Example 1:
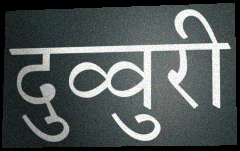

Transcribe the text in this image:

दुव्वुरी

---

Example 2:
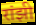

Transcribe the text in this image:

रांझी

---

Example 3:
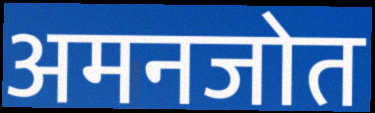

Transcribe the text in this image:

अमनजोत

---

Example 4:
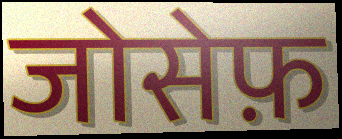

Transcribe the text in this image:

जोसेफ़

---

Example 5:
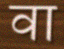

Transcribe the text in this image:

वा